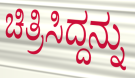
ಚಿತ್ರಿಸಿದ್ದನ್ನು